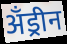
अँड्रीन